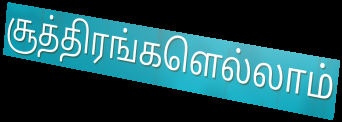
சூத்திரங்களெல்லாம்